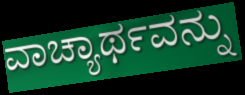
ವಾಚ್ಯಾರ್ಥವನ್ನು